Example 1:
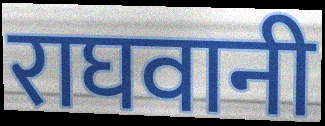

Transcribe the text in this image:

राघवानी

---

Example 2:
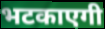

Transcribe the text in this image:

भटकाएगी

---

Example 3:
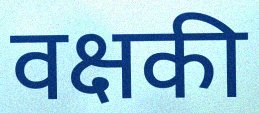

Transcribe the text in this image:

वक्षकी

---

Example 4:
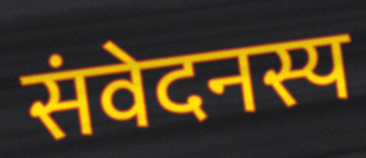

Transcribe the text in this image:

संवेदनस्य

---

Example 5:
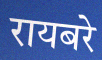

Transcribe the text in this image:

रायबरे